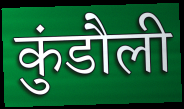
कुंडौली